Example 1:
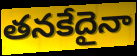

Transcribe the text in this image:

తనకేదైనా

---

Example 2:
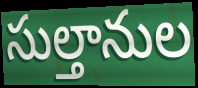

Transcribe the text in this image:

సుల్తానుల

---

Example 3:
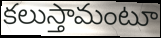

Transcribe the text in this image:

కలుస్తామంటూ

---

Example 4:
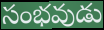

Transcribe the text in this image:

సంభవుడు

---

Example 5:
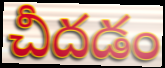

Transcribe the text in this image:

చీదడం